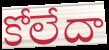
కోలేదా